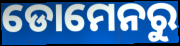
ଡୋମେନରୁ